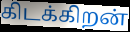
கிடக்கிறன்